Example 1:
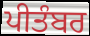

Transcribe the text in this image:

ਪੀਤੰਬਰ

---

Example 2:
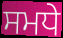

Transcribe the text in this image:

ਸਮਧੇ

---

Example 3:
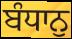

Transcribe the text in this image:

ਬੰਧਾਨੁ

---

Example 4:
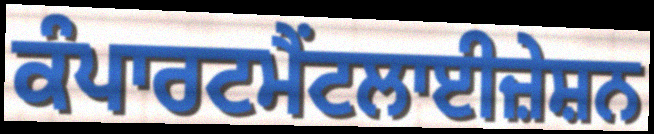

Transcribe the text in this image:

ਕੰਪਾਰਟਮੈਂਟਲਾਈਜ਼ੇਸ਼ਨ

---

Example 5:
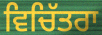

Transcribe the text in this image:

ਵਿਚਿੱਤਰਾ